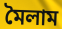
মৈলাম